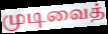
முடிவைத்